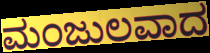
ಮಂಜುಲವಾದ